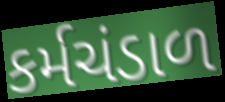
કર્મચંડાળ